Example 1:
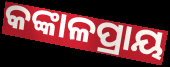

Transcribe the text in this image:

କଙ୍କାଳପ୍ରାୟ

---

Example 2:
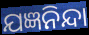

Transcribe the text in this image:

ଯଜ୍ଞନିନ୍ଦା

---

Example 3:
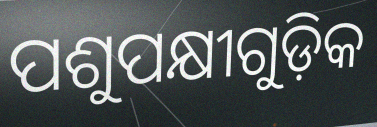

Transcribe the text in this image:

ପଶୁପକ୍ଷୀଗୁଡ଼ିକ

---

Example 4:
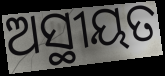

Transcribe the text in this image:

ଅସ୍ଥୀୟତ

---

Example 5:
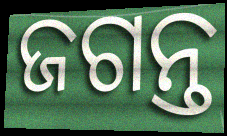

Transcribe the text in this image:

ଜଗନ୍ତ